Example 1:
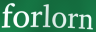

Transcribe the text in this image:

forlorn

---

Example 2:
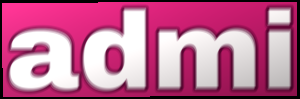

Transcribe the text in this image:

admi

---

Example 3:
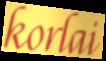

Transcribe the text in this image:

korlai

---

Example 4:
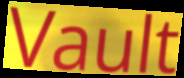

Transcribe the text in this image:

Vault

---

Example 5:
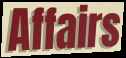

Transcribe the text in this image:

Affairs